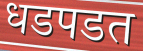
धडपडत